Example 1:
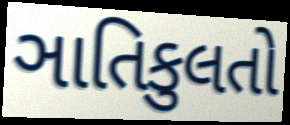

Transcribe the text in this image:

ઞાતિકુલતો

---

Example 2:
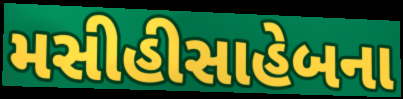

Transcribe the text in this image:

મસીહીસાહેબના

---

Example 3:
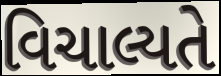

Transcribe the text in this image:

વિચાલ્યતે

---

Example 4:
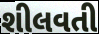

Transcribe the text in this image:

શીલવતી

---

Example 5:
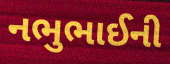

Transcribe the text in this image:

નભુભાઈની